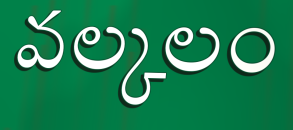
వల్కలం